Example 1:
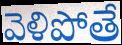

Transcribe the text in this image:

వెళిపోతే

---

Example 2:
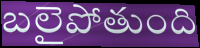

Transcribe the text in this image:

బలైపోతుంది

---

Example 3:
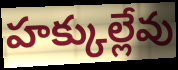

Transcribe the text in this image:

హక్కుల్లేవు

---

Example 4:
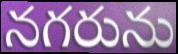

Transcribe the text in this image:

నగరును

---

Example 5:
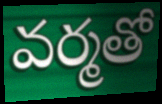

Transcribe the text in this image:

వర్మతో